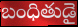
బంధితుడై